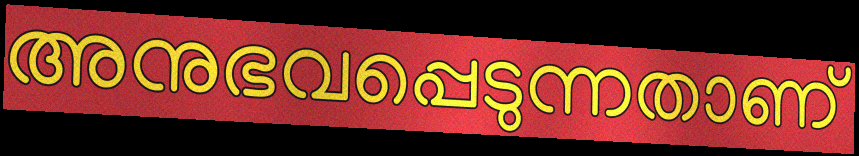
അനുഭവപ്പെടുന്നതാണ്